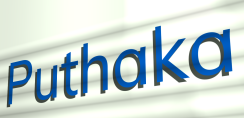
Puthaka